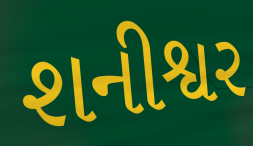
શનીશ્વર